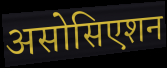
असोसिएशन